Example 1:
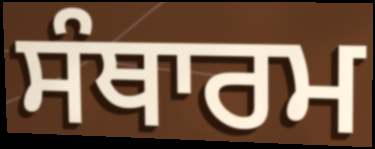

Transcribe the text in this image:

ਸੰਥਾਰਮ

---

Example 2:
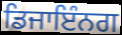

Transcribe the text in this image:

ਡਿਜਾਇੰਨਗ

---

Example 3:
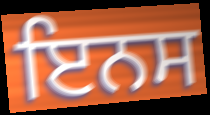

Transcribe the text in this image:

ਇਨਸ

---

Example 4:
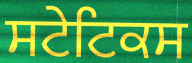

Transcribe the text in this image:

ਸਟੇਟਿਕਸ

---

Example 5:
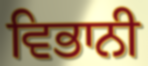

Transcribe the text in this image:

ਵਿਭਾਨੀ